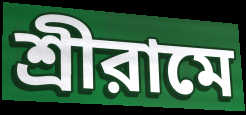
শ্রীরামে